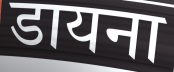
डायना